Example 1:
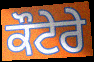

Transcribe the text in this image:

ਕੌਟੇਰੇ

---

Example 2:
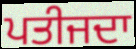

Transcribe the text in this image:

ਪਤੀਜਦਾ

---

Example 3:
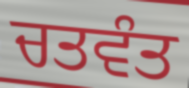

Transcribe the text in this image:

ਚਤਵੰਤ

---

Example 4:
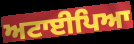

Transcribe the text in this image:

ਅਟਾਈਪਿਆ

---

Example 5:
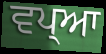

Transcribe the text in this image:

ਵਪ੍ਆ